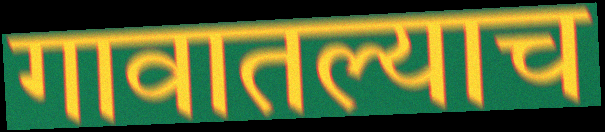
गावातल्याच